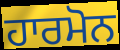
ਹਾਰਮੋਨ